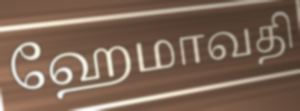
ஹேமாவதி